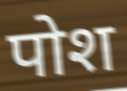
पोश